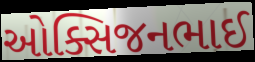
ઓક્સિજનભાઈ